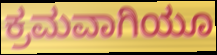
ಕ್ರಮವಾಗಿಯೂ